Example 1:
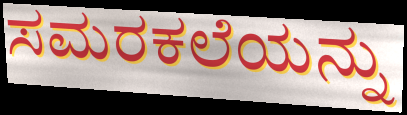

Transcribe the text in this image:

ಸಮರಕಲೆಯನ್ನು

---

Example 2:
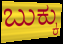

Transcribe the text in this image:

ಬುಕ್ಕು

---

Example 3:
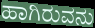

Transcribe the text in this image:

ಹಾಗಿರುವನು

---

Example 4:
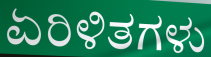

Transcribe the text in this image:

ಏರಿಳಿತಗಳು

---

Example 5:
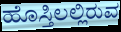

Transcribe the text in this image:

ಹೊಸ್ತಿಲಲ್ಲಿರುವ